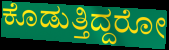
ಕೊಡುತ್ತಿದ್ದರೋ